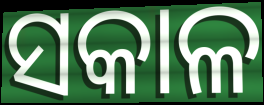
ସକାଳ